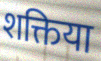
शक्तिया